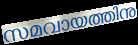
സമവായത്തിനു